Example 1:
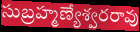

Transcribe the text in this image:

సుబ్రహ్మణ్యేశ్వరరావు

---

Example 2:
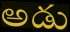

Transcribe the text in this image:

అడు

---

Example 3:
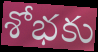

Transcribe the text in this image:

శోభకు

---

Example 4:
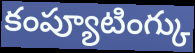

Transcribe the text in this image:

కంప్యూటింగ్కు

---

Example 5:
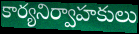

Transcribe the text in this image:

కార్యనిర్వాహకులు